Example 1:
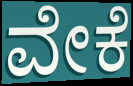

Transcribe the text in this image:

ವೇಕೆ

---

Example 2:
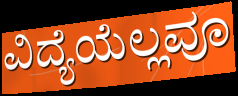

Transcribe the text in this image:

ವಿದ್ಯೆಯೆಲ್ಲವೂ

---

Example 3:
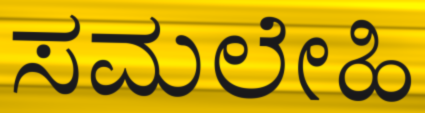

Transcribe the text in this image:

ಸಮಲೇಹಿ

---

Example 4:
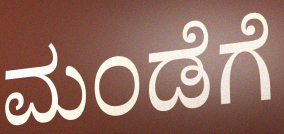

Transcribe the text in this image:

ಮಂಡೆಗೆ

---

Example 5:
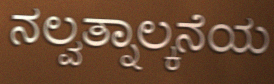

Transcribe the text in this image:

ನಲ್ವತ್ನಾಲ್ಕನೆಯ